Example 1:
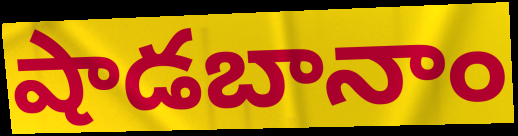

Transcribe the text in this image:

షాడబానాం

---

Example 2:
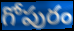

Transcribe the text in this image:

గోపురం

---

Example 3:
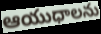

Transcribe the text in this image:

ఆయుధాలను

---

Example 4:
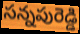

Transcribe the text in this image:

సన్నపురెడ్డి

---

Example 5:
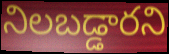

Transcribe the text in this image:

నిలబడ్డారని